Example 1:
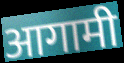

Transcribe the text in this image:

आगामी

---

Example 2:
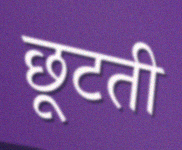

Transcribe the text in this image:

छूटती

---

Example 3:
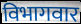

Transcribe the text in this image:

विभागवार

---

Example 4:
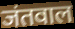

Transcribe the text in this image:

जंतवाल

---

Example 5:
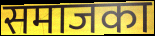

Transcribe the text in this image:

समाजका